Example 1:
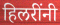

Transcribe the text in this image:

हिलरींनी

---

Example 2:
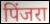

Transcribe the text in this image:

पिंजरा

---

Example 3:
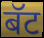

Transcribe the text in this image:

बॅट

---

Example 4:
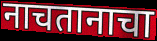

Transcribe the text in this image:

नाचतानाचा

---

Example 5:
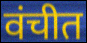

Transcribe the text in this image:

वंचीत